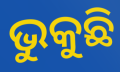
ଭୁକୁଛି